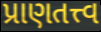
પ્રાણતત્ત્વ